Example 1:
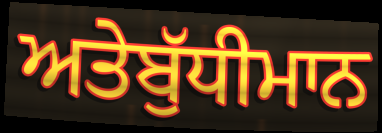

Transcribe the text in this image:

ਅਤੇਬੁੱਧੀਮਾਨ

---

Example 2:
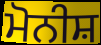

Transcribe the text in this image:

ਮੋਨੀਸ਼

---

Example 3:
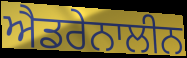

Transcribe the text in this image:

ਐਡਰੇਨਾਲੀਨ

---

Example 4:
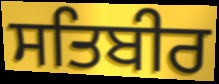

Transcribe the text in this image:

ਸਤਿਬੀਰ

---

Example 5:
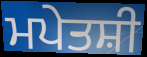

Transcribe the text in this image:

ਮਪੇਤਸ਼ੀ